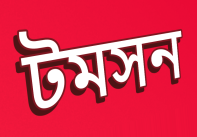
টমসন